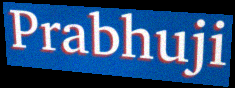
Prabhuji